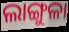
ଲାଙ୍ଗୁଳା